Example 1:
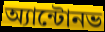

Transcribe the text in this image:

অ্যান্টোনভ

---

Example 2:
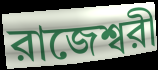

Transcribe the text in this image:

রাজেশ্বরী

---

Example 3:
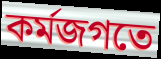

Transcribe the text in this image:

কর্মজগতে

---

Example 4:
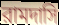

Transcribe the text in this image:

রামদাসি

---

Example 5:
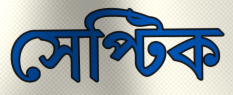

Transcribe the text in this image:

সেপ্টিক